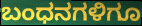
ಬಂಧನಗಳಿಗೂ